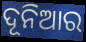
ଦୂନିଆର